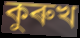
কুৰুখ